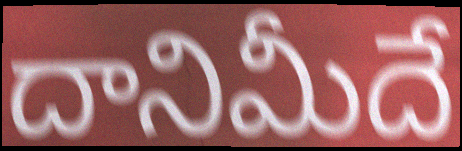
దానిమీదే